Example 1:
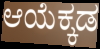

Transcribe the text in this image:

ಆಯೆಕ್ಕಡ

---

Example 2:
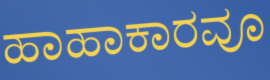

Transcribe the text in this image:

ಹಾಹಾಕಾರವೂ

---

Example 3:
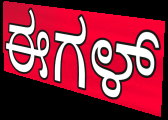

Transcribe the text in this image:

ಈಗಳ್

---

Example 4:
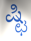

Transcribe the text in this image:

ಷ್ಟಿ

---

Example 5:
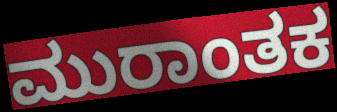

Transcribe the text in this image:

ಮುರಾಂತಕ